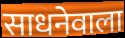
साधनेवाला